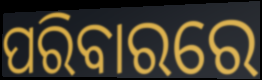
ପରିବାରରେ